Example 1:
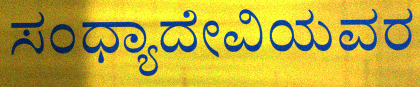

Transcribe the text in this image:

ಸಂಧ್ಯಾದೇವಿಯವರ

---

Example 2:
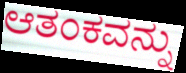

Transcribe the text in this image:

ಆತಂಕವನ್ನು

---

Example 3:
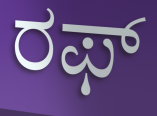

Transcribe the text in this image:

ರಫ್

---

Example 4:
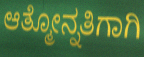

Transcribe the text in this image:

ಆತ್ಮೋನ್ನತಿಗಾಗಿ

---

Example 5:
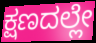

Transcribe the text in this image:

ಕ್ಷಣದಲ್ಲೇ